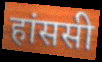
हांससी